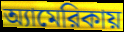
অ্যামেরিকায়